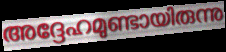
അദ്ദേഹമുണ്ടായിരുന്നു